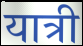
यात्री